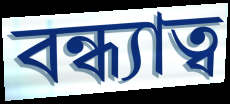
বন্ধ্যাত্ব